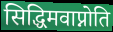
सिद्धिमवाप्नोति